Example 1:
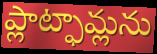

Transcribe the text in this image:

ప్లాట్ఫామ్లను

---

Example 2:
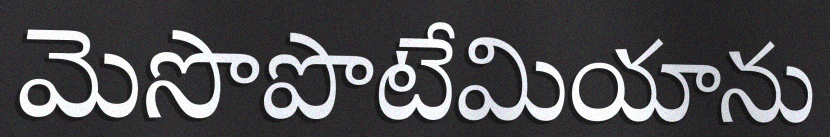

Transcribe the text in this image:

మెసొపొటేమియాను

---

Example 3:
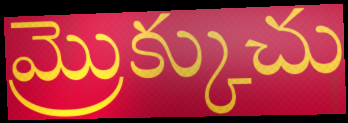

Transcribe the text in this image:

మ్రొక్కుచు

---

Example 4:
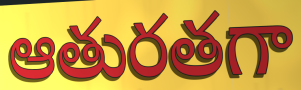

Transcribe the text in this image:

ఆతురతగా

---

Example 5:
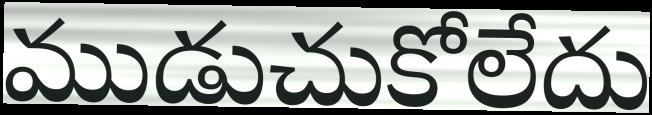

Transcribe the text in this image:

ముడుచుకోలేదు